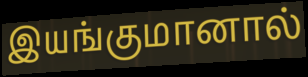
இயங்குமானால்